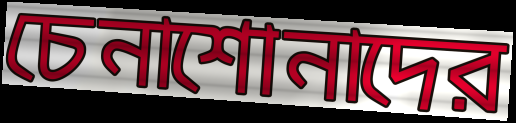
চেনাশোনাদের